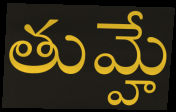
తుమ్హే